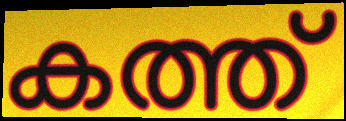
കത്ത്